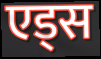
एड्स